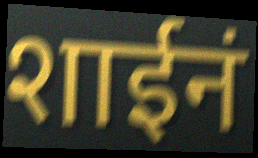
शाईनं